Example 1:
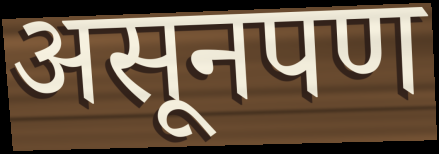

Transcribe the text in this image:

असूनपण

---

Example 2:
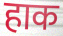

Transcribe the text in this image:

हाक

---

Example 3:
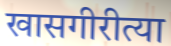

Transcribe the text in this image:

खासगीरीत्या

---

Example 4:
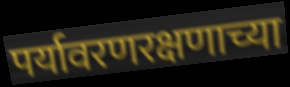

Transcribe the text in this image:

पर्यावरणरक्षणाच्या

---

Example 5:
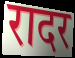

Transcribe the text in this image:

रादर